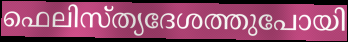
ഫെലിസ്ത്യദേശത്തുപോയി